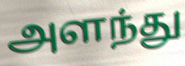
அளந்து